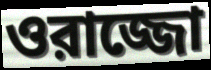
ওরাজ্জো